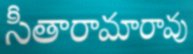
సీతారామారావు